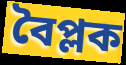
বৈপ্লক